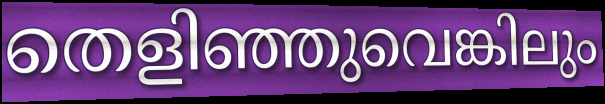
തെളിഞ്ഞുവെങ്കിലും